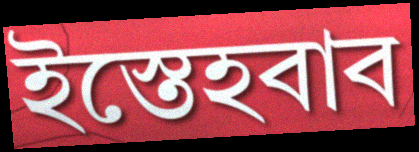
ইস্তেহবাব